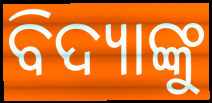
ବିଦ୍ୟାଙ୍କୁ